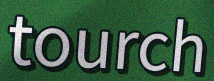
tourch